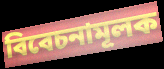
বিবেচনামূলক